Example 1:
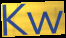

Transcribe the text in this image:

Kw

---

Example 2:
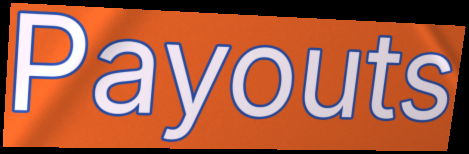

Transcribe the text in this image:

Payouts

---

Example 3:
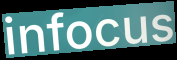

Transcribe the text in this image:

infocus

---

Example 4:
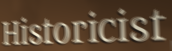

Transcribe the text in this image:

Historicist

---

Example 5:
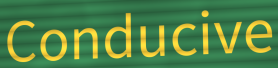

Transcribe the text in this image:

Conducive